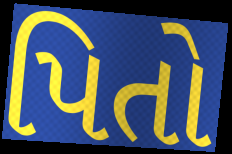
પિતો